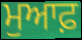
ਮੁਆਫ਼